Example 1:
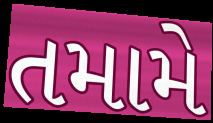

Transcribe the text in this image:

તમામે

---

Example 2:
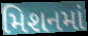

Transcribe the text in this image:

મિશનમાં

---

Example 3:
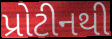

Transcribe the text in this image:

પ્રોટીનથી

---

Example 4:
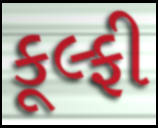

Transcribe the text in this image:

કૂલ્ફી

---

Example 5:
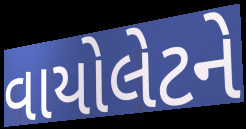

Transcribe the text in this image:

વાયોલેટને